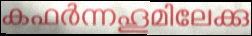
കഫർന്നഹൂമിലേക്കു